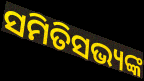
ସମିତିସଭ୍ୟଙ୍କ